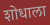
शोधाला